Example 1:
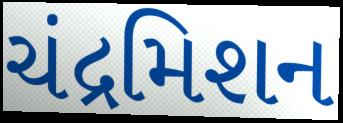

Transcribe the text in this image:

ચંદ્રમિશન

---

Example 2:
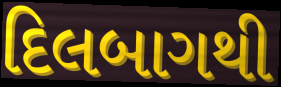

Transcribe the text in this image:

દિલબાગથી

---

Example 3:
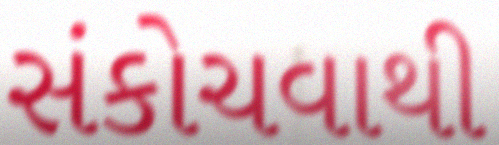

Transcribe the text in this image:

સંકોચવાથી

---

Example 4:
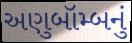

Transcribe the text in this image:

અણુબૉમ્બનું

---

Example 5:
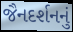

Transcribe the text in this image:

જૈનદર્શનનું